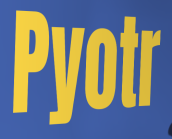
Pyotr